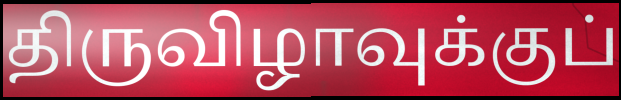
திருவிழாவுக்குப்